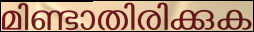
മിണ്ടാതിരിക്കുക